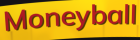
Moneyball